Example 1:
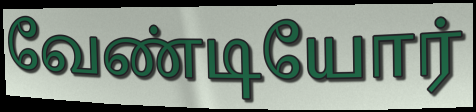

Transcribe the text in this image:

வேண்டியோர்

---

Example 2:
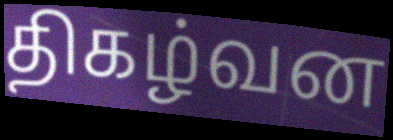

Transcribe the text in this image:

திகழ்வன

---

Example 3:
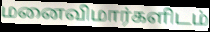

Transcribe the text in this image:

மனைவிமார்களிடம்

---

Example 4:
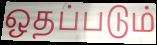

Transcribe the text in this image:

ஒதப்படும்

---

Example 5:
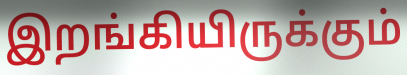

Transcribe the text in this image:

இறங்கியிருக்கும்